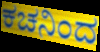
ಕಚನಿಂದ